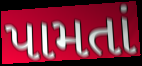
પામતાં